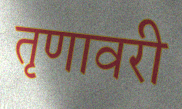
तृणावरी